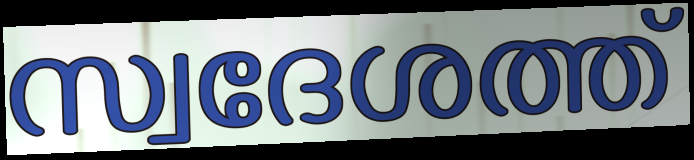
സ്വദേശത്ത്